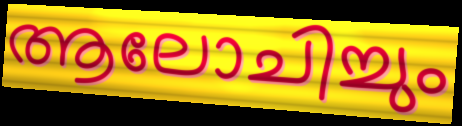
ആലോചിച്ചും